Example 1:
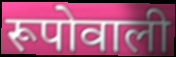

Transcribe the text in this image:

रूपोवाली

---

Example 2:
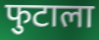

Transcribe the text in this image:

फुटाला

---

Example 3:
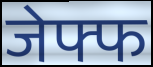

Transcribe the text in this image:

जेफ्फ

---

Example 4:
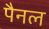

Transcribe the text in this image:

पैनल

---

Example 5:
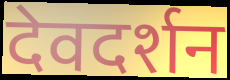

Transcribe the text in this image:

देवदर्शन